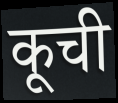
कूची